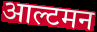
आल्टमन